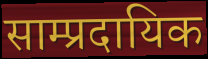
साम्प्रदायिक